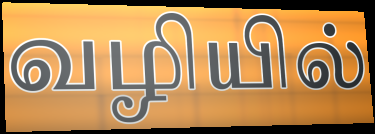
வழியில்